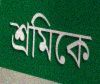
শ্ৰমিকে